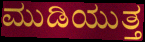
ಮುಡಿಯುತ್ತ